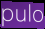
pulo